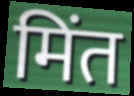
मिंत